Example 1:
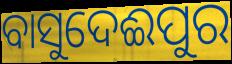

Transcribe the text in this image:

ବାସୁଦେଈପୁର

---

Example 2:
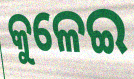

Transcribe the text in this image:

କୁଳେଇ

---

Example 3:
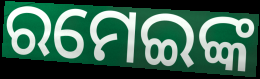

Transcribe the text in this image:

ରମେଇଙ୍କ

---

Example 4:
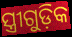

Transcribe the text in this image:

ସ୍ତ୍ରୀଗୁଡ଼ିକ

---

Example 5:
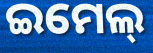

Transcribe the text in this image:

ଇମେଲ୍